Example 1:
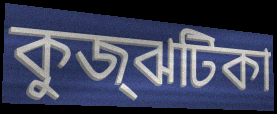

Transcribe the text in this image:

কুজ্‌ঝটিকা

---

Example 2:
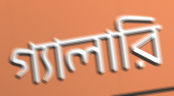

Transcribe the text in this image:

গ্যালারি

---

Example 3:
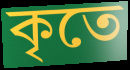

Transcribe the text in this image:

কৃতে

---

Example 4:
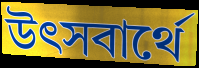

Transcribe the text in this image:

উৎসবার্থে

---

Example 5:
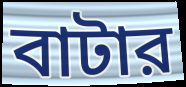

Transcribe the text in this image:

বাটার